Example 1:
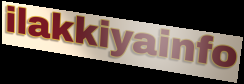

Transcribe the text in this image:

ilakkiyainfo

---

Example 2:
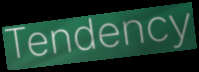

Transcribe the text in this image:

Tendency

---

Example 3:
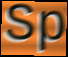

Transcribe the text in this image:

Sp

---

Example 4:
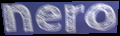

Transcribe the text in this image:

nero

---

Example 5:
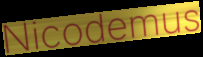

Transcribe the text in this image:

Nicodemus